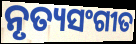
ନୃତ୍ୟସଂଗୀତ